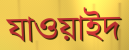
যাওয়াইদ